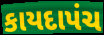
કાયદાપંચ